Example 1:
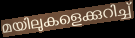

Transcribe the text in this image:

മയിലുകളെക്കുറിച്ച്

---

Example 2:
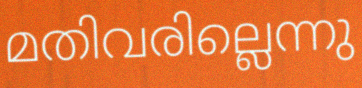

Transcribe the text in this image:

മതിവരില്ലെന്നു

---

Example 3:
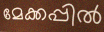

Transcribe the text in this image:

മേക്കപ്പിൽ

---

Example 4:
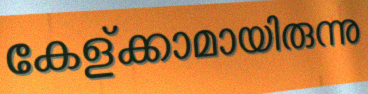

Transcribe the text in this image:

കേള്ക്കാമായിരുന്നു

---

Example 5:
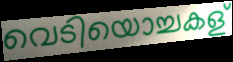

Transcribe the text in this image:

വെടിയൊച്ചകള്